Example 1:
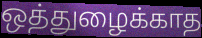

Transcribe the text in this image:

ஒத்துழைக்காத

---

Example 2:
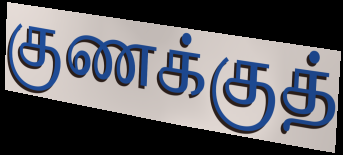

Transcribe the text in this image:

குணக்குத்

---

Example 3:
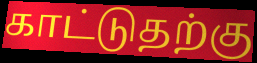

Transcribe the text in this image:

காட்டுதற்கு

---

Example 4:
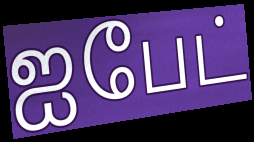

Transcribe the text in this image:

ஐபேட்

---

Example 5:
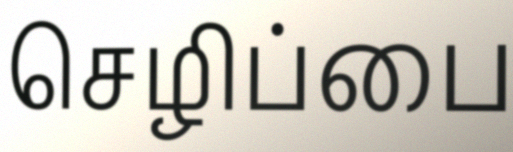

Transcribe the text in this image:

செழிப்பை